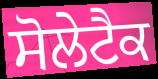
ਸੋਲੇਟੈਕ